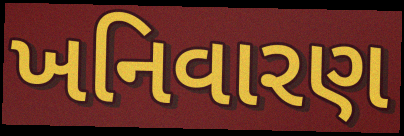
ખનિવારણ